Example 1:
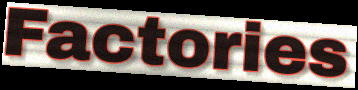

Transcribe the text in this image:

Factories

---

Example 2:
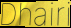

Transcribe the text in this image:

Dhairi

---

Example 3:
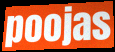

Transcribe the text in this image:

poojas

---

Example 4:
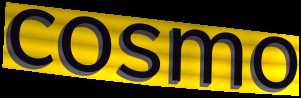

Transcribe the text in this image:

cosmo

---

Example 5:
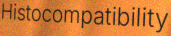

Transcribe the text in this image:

Histocompatibility